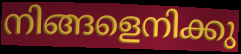
നിങ്ങളെനിക്കു